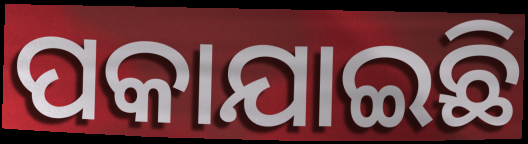
ପକାଯାଇଛି